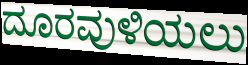
ದೂರವುಳಿಯಲು